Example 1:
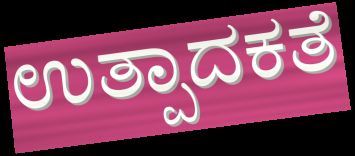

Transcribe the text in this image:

ಉತ್ಪಾದಕತೆ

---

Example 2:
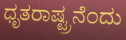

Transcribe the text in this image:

ಧೃತರಾಷ್ಟ್ರನೆಂದು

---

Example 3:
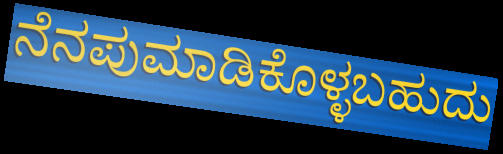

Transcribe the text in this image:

ನೆನಪುಮಾಡಿಕೊಳ್ಳಬಹುದು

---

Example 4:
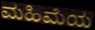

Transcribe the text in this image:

ಮಹಿಮೆಯ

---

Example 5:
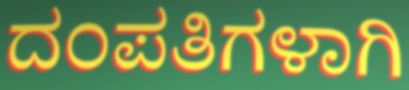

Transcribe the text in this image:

ದಂಪತಿಗಳಾಗಿ